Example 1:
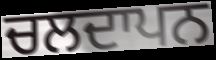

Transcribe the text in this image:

ਚਲਦਾਪਨ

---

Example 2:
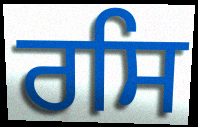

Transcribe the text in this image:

ਰਸਿ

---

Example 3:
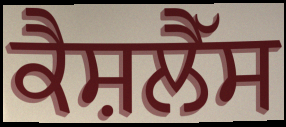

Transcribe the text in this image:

ਕੈਸ਼ਲੈੱਸ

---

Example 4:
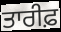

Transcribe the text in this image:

ਤਾਰੀਫ਼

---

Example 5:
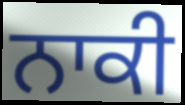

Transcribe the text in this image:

ਨਾਕੀ